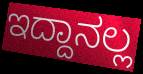
ಇದ್ದಾನಲ್ಲ